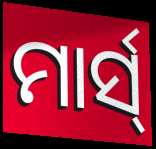
ମାର୍ସ୍